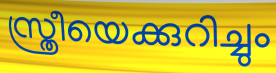
സ്ത്രീയെക്കുറിച്ചും